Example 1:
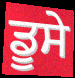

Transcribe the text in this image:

ਡੂਸੇ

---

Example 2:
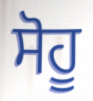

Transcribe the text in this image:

ਸੋਹੂ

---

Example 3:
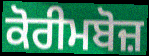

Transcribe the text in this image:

ਕੋਰੀਮਬੋਜ਼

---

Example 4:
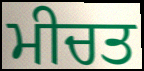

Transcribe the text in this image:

ਮੀਚਤ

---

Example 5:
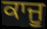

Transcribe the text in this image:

ਕਾਜੂ